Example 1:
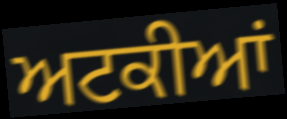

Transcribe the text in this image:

ਅਟਕੀਆਂ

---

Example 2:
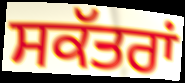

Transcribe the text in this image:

ਸਕੱਤਰਾਂ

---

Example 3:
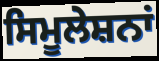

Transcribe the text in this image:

ਸਿਮੂਲੇਸ਼ਨਾਂ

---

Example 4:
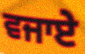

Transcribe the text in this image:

ਵਜਾਏ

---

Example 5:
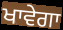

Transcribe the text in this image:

ਖਾਵੇਗਾ